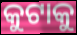
କୁଟାକୁ